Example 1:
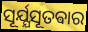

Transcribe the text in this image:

ସୂର୍ଯ୍ଯସୂତଵାର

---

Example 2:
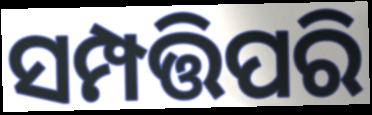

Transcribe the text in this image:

ସମ୍ପତ୍ତିପରି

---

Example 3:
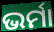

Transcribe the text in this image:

ଭର୍ମା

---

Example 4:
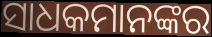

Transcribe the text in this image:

ସାଧକମାନଙ୍କର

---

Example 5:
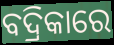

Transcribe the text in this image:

ବଦ୍ରିକାରେ